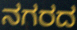
ನಗರದ